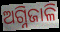
ଅଗ୍ନିଜାଳି